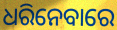
ଧରିନେବାରେ